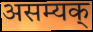
असम्यक्